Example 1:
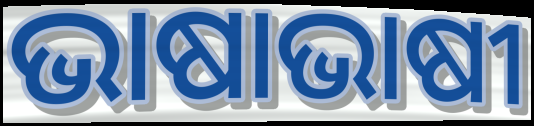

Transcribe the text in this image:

ଭାଷାଭାଷୀ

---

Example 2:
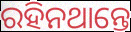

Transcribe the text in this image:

ରହିନଥାନ୍ତେ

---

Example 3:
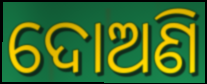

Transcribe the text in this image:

ଦୋଅଣି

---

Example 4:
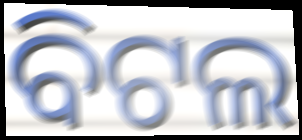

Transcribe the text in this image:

ବିଟଲ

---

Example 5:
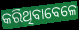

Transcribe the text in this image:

କରିଥିବାବେଳେ